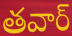
తవార్